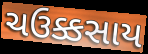
ચઉક્કસાય